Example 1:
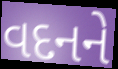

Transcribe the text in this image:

વદનને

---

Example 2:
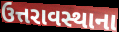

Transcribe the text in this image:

ઉત્તરાવસ્થાના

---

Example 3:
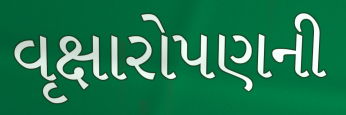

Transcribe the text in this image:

વૃક્ષારોપણની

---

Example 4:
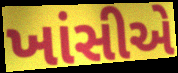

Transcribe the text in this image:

ખાંસીએ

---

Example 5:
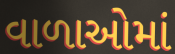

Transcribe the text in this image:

વાળાઓમાં